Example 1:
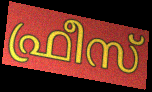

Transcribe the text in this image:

ഫ്രീസ്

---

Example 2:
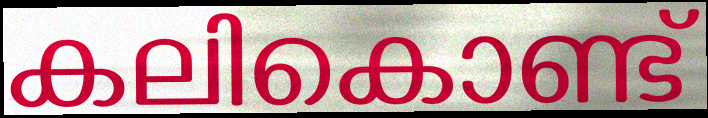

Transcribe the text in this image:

കലികൊണ്ട്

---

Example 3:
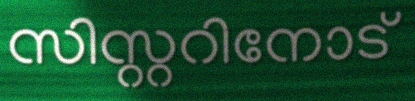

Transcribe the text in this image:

സിസ്റ്ററിനോട്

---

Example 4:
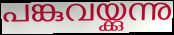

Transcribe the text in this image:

പങ്കുവയ്ക്കുന്നു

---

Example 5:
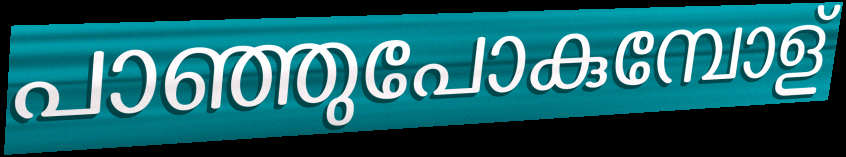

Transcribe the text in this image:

പാഞ്ഞുപോകുമ്പോള്